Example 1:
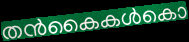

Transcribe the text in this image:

തൻകൈകൾകൊ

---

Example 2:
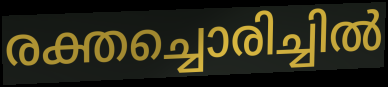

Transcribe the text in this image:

രക്തച്ചൊരിച്ചിൽ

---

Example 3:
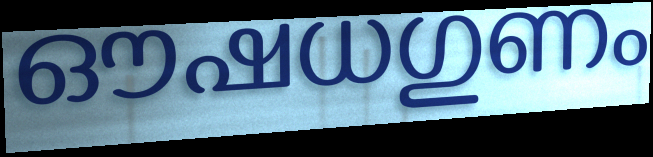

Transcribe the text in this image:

ഔഷധഗുണം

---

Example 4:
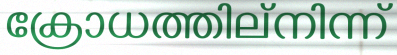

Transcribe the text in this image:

ക്രോധത്തില്നിന്ന്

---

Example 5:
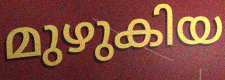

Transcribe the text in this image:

മുഴുകിയ